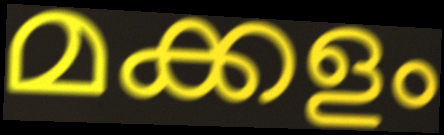
മക്കളം